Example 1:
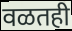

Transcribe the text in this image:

वळतही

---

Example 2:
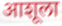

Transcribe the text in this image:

आशूला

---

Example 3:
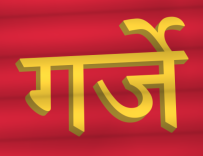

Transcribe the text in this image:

गर्जे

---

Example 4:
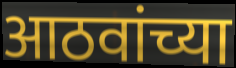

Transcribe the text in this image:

आठवांच्या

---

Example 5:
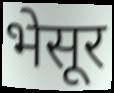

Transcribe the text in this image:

भेसूर